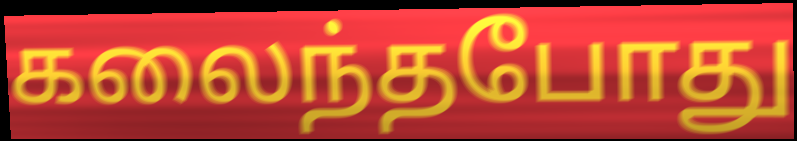
கலைந்தபோது